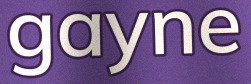
gayne